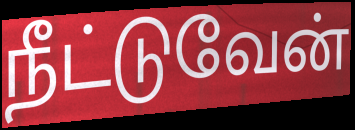
நீட்டுவேன்